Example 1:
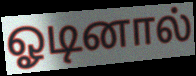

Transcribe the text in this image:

ஓடினால்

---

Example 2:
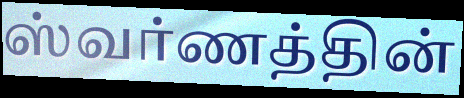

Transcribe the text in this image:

ஸ்வர்ணத்தின்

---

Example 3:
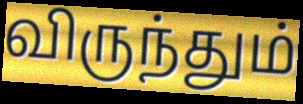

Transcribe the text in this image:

விருந்தும்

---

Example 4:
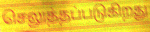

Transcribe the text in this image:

செலுத்தப்படுகிறது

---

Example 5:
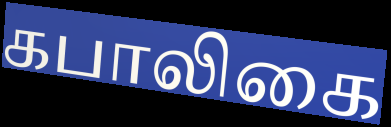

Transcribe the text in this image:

கபாலிகை